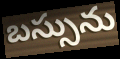
బస్సును